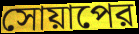
সোয়াপের